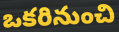
ఒకరినుంచి